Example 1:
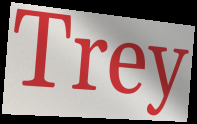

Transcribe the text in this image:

Trey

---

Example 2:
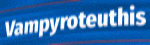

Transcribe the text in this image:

Vampyroteuthis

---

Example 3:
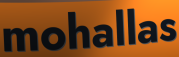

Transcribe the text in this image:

mohallas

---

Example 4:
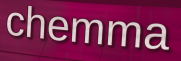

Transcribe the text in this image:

chemma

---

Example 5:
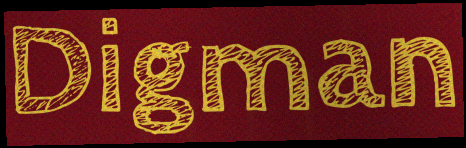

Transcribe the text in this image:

Digman